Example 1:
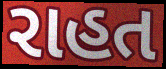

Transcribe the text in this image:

રાહત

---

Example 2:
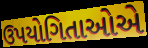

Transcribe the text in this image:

ઉપયોગિતાઓએ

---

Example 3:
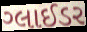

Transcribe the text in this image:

ગ્લાઈડર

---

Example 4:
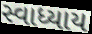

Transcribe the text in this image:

સ્વાધ્યાય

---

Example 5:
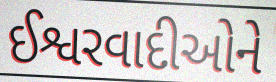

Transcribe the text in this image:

ઈશ્વરવાદીઓને